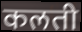
कलती